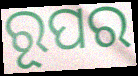
ରୂପର